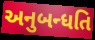
અનુબન્ધતિ